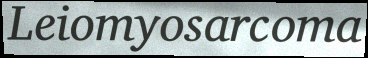
Leiomyosarcoma